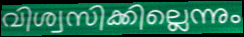
വിശ്വസിക്കില്ലെന്നും